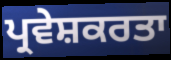
ਪ੍ਰਵੇਸ਼ਕਰਤਾ